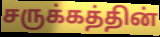
சருக்கத்தின்